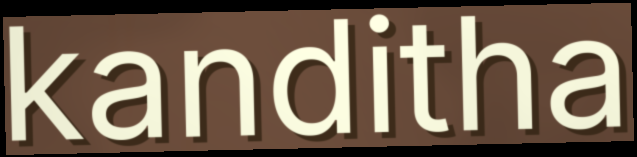
kanditha